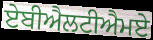
ਏਬੀਐਲਟੀਐਮਏ